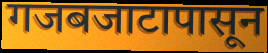
गजबजाटापासून